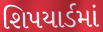
શિપયાર્ડમાં